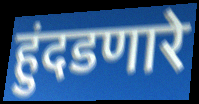
हुंदडणारे